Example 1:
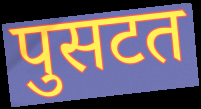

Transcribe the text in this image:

पुसटत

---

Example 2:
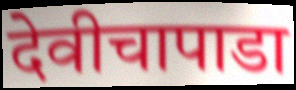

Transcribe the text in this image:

देवीचापाडा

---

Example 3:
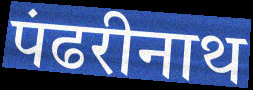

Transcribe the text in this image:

पंढरीनाथ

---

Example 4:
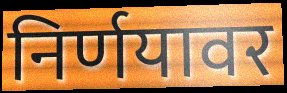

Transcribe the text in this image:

निर्णयावर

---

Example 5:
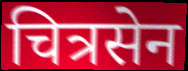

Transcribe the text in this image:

चित्रसेन